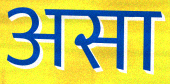
असा